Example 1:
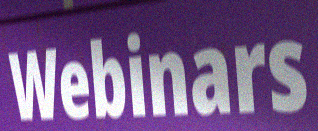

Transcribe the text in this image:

Webinars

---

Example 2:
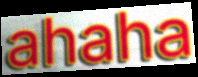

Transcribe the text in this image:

ahaha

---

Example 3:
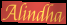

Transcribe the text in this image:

Alindha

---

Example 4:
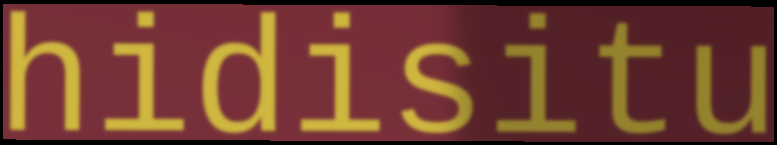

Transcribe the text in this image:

hidisitu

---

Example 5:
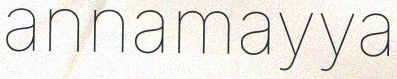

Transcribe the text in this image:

annamayya